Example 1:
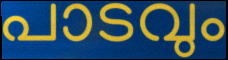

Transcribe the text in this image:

പാടവും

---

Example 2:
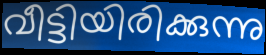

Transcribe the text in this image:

വീട്ടിയിരിക്കുന്നു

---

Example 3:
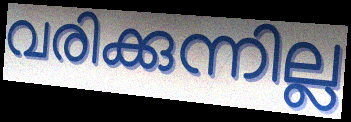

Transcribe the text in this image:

വരിക്കുന്നില്ല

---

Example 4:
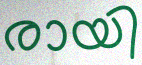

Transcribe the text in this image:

രായി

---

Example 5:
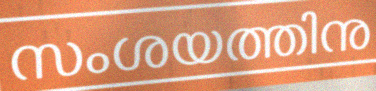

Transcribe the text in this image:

സംശയത്തിനു